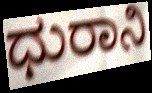
ಧುರಾನಿ